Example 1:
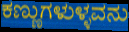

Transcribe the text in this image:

ಕಣ್ಣುಗಳುಳ್ಳವನು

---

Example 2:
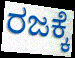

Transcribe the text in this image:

ರಜಕ್ಕೆ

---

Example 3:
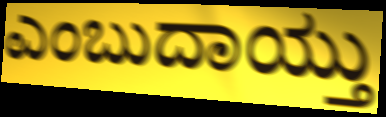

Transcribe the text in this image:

ಎಂಬುದಾಯ್ತು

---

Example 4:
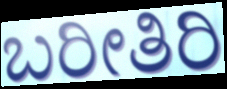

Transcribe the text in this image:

ಬರೀತಿರಿ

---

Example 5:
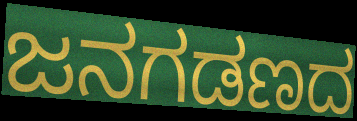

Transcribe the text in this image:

ಜನಗಡಣದ